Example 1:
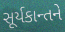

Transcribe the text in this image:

સૂર્યકાન્તને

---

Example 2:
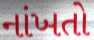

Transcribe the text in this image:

નાંખતો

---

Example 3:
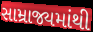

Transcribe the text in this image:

સામ્રાજ્યમાંથી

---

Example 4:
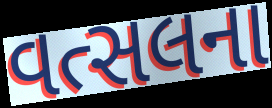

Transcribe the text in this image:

વત્સલના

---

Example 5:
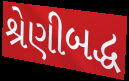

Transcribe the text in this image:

શ્રેણીબદ્ધ